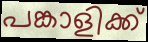
പങ്കാളിക്ക്